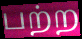
பற்ற